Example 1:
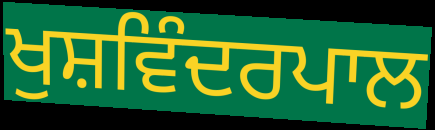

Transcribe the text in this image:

ਖੁਸ਼ਵਿੰਦਰਪਾਲ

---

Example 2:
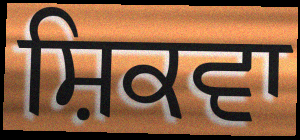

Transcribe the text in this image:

ਸ਼ਿਕਵਾ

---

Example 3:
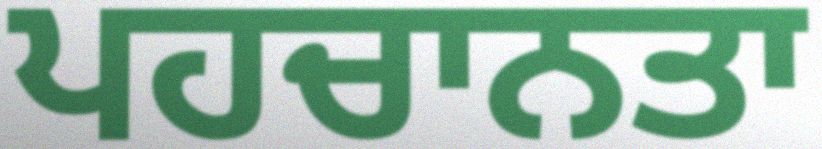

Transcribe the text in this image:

ਪਹਚਾਨਤਾ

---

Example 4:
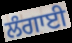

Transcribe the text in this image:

ਲੰਗਾਈ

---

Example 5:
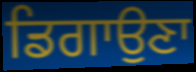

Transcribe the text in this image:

ਡਿਗਾਉਣਾ